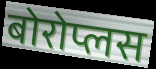
बोरोप्लस